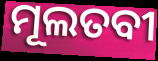
ମୂଲତବୀ